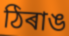
ঠিৰাঙ